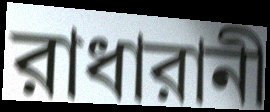
রাধারানী